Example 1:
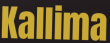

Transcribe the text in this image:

Kallima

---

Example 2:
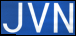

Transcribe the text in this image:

JVN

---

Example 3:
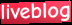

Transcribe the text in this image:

liveblog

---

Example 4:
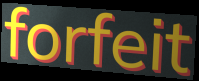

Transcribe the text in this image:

forfeit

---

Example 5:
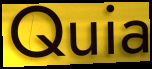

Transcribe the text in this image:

Quia